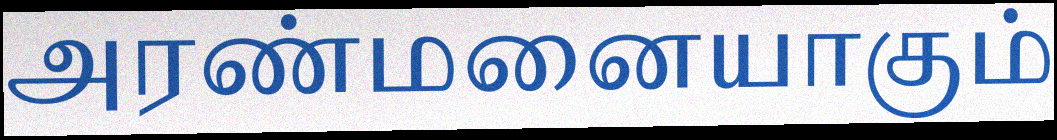
அரண்மனையாகும்